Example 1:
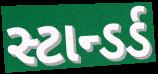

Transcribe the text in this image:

સ્ટાન્ડર્ડ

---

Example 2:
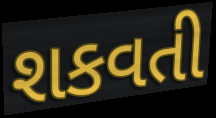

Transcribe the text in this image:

શકવતી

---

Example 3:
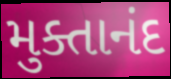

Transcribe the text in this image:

મુક્તાનંદ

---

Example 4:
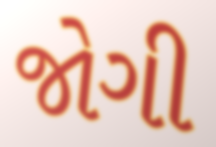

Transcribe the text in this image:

જોગી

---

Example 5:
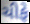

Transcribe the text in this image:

ચીફે